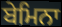
ਬੇਮਿਨਾ